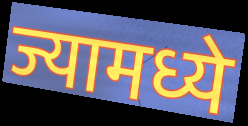
ज्यामध्ये